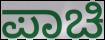
ಪಾಚಿ